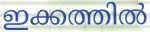
ഇക്കത്തിൽ